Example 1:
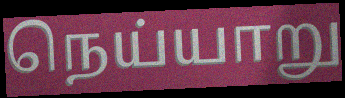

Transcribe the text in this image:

நெய்யாறு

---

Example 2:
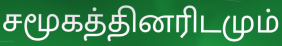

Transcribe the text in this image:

சமூகத்தினரிடமும்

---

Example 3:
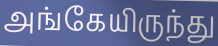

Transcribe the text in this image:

அங்கேயிருந்து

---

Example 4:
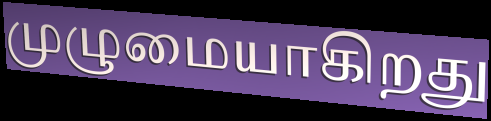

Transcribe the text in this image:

முழுமையாகிறது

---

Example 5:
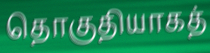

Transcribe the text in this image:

தொகுதியாகத்